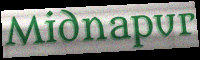
Midnapur